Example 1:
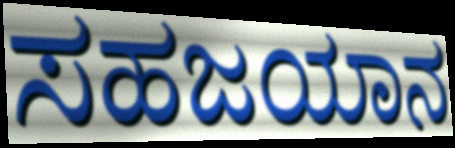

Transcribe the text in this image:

ಸಹಜಯಾನ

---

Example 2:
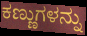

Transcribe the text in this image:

ಕಣ್ಣುಗಳನ್ನು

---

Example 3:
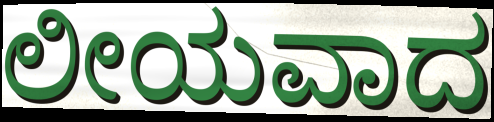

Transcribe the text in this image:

ಲೀಯವಾದ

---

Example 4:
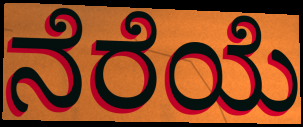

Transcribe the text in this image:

ನೆರೆಯೆ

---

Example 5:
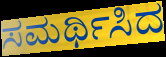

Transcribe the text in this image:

ಸಮರ್ಥಿಸಿದ